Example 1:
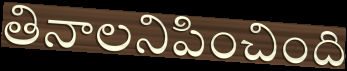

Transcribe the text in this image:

తినాలనిపించింది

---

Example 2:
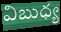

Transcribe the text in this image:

విబుధ్య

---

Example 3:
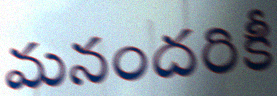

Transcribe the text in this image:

మనందరికీ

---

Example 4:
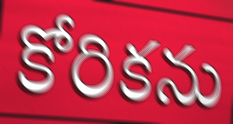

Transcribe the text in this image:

కోరికను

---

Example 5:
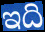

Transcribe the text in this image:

ఇది